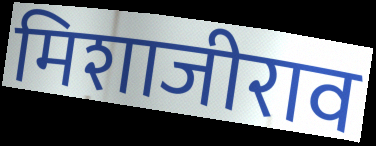
मिशाजीराव